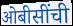
ओबीसींची